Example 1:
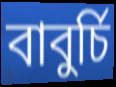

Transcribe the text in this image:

বাবুর্চি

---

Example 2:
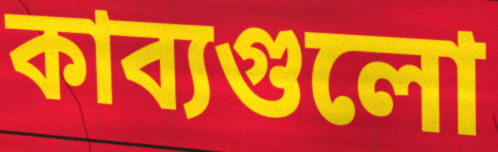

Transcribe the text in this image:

কাব্যগুলো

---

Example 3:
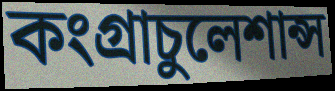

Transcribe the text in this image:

কংগ্রাচুলেশান্স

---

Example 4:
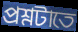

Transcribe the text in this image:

প্রশ্নটাতে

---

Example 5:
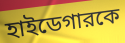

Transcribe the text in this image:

হাইডেগারকে